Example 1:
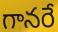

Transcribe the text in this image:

గానరే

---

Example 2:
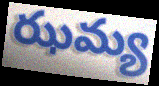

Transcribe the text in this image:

ఝమ్య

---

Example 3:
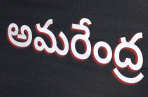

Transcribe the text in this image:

అమరేంద్ర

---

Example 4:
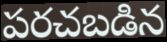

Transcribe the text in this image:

పరచబడిన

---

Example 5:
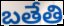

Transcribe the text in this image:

బతేతి